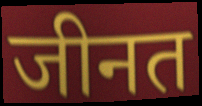
जीनत